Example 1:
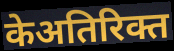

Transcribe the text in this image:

केअतिरिक्त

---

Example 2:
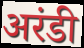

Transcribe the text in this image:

अरंडी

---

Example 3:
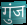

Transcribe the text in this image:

गुंज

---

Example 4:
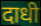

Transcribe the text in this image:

दाधी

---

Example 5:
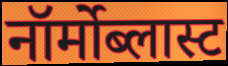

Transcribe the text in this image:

नॉर्मोब्लास्ट